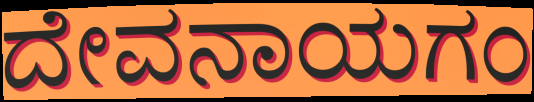
ದೇವನಾಯಗಂ